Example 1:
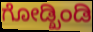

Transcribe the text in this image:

ಗೋಡ್ಖಿಂಡಿ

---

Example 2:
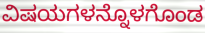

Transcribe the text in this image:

ವಿಷಯಗಳನ್ನೊಳಗೊಂಡ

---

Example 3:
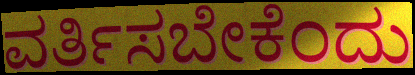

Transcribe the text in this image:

ವರ್ತಿಸಬೇಕೆಂದು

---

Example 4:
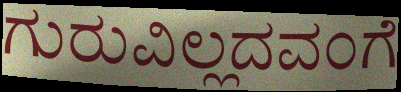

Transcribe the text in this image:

ಗುರುವಿಲ್ಲದವಂಗೆ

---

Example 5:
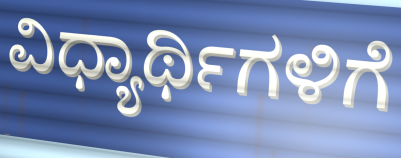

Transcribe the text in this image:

ವಿಧ್ಯಾರ್ಥಿಗಳಿಗೆ